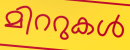
മിററുകൾ